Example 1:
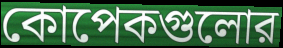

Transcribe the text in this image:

কোপেকগুলোর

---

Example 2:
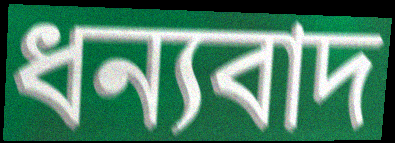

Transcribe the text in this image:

ধন্যবাদ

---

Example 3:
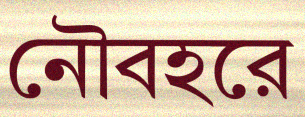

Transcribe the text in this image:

নৌবহরে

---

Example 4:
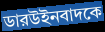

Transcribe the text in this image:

ডারউইনবাদকে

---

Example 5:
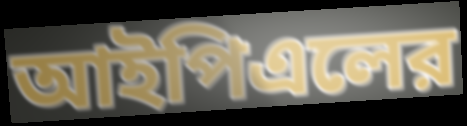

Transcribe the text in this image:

আইপিএলের